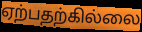
ஏற்பதற்கில்லை